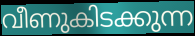
വീണുകിടക്കുന്ന